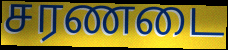
சரணடை